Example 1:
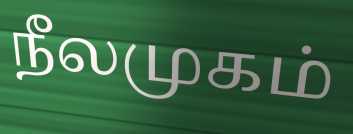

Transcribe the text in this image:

நீலமுகம்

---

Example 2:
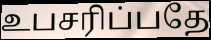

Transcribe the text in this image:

உபசரிப்பதே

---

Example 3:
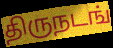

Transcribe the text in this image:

திருநடங்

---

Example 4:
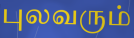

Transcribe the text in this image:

புலவரும்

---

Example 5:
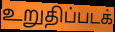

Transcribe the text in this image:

உறுதிப்படக்